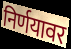
निर्णयावर